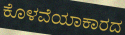
ಕೊಳವೆಯಾಕಾರದ